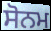
ਸੋਨਮ